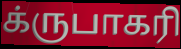
க்ருபாகரி